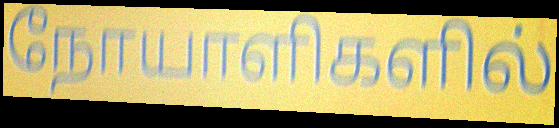
நோயாளிகளில்